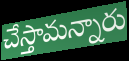
చేస్తామన్నారు